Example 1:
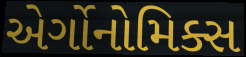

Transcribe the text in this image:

એર્ગોનોમિક્સ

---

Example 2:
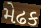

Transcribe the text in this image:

મેઢક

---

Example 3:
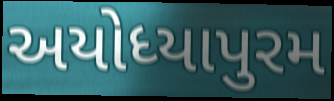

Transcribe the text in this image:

અયોધ્યાપુરમ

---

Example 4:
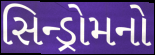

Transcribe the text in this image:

સિન્ડ્રોમનો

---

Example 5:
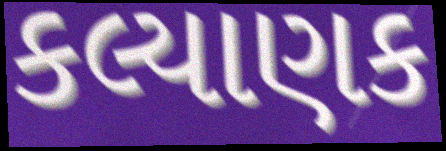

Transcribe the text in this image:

કલ્યાણક